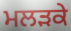
ਮਲੜਕੇ